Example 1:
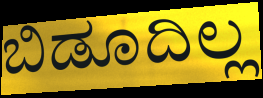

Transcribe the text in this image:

ಬಿಡೂದಿಲ್ಲ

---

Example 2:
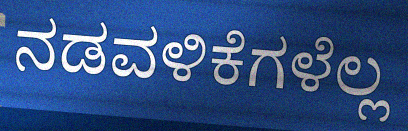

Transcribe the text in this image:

ನಡವಳಿಕೆಗಳೆಲ್ಲ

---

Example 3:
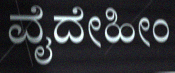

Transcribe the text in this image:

ವೈದೇಹೀಂ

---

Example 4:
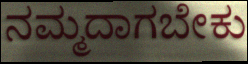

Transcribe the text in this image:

ನಮ್ಮದಾಗಬೇಕು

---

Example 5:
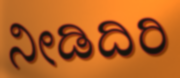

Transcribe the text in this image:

ನೀಡಿದಿರಿ